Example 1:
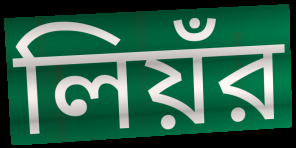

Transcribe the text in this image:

লিয়ঁর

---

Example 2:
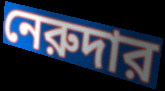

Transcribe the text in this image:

নেরুদার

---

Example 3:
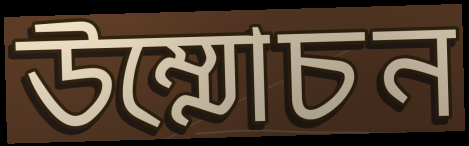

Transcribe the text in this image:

উম্মোচন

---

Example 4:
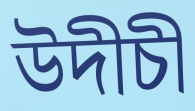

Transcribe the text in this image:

উদীচী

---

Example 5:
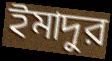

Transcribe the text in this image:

ইমাদুর